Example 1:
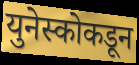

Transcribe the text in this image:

युनेस्कोकडून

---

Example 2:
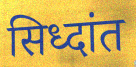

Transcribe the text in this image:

सिध्दांत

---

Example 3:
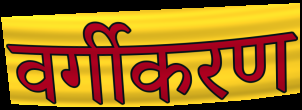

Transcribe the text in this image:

वर्गीकरण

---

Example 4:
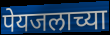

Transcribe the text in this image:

पेयजलाच्या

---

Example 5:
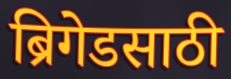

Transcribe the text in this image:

ब्रिगेडसाठी